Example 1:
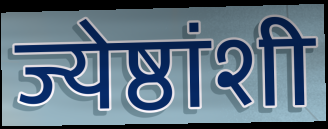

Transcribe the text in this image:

ज्येष्ठांशी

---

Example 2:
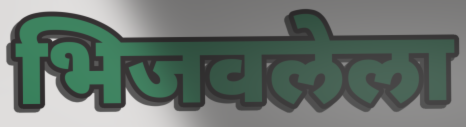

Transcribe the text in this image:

भिजवलेला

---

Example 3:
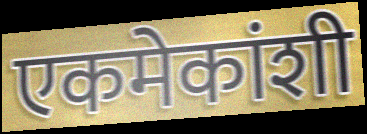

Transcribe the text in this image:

एकमेकांशी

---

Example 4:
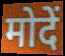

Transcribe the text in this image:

मोदें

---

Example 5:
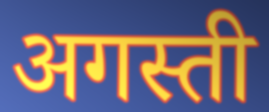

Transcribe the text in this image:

अगस्ती